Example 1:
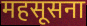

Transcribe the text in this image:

महसूसना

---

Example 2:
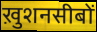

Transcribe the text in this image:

ख़ुशनसीबों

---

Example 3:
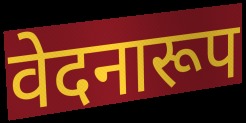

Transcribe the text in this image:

वेदनारूप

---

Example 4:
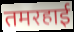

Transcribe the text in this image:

तमरहाई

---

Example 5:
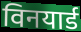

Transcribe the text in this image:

विनयार्ड